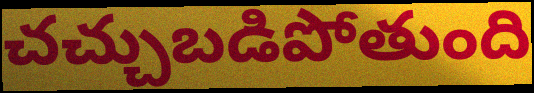
చచ్చుబడిపోతుంది